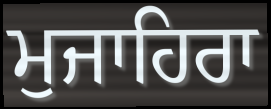
ਮੁਜਾਹਿਰਾ